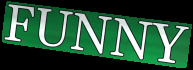
FUNNY